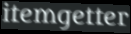
itemgetter